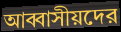
আব্বাসীয়দের